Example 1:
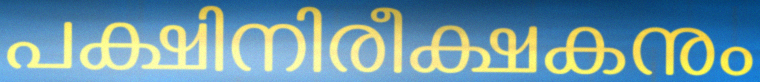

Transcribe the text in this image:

പക്ഷിനിരീക്ഷകനും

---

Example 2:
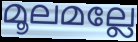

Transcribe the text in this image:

മൂലമല്ലേ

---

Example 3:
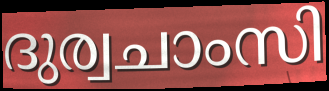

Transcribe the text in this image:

ദുര്വചാംസി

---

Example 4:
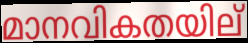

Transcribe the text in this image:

മാനവികതയില്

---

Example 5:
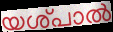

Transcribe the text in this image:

യശ്പാൽ